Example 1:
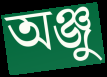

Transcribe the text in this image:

অঞ্জু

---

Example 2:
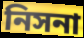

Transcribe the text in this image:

নিসনা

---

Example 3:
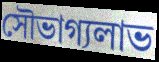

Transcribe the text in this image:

সৌভাগ্যলাভ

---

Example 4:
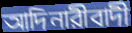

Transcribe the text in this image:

আদিনারীবাদী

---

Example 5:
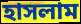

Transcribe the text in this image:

হাসলাম